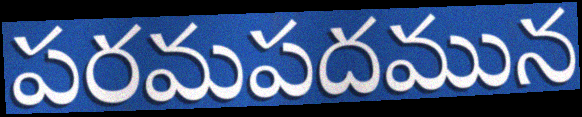
పరమపదమున